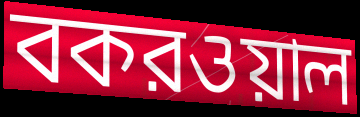
বকরওয়াল